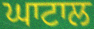
ਘਾਟਾਲ